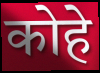
कोहे